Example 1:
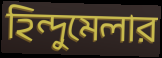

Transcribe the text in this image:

হিন্দুমেলার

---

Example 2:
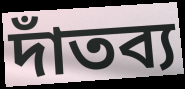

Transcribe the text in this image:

দাঁতব্য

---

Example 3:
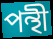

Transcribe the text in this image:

পন্থী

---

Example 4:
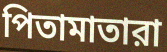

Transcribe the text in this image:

পিতামাতারা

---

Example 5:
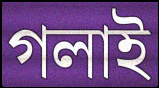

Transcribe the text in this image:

গলাই